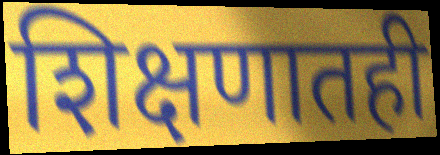
शिक्षणातही